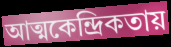
আত্মকেন্দ্রিকতায়